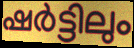
ഷർട്ടിലും